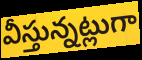
వీస్తున్నట్లుగా